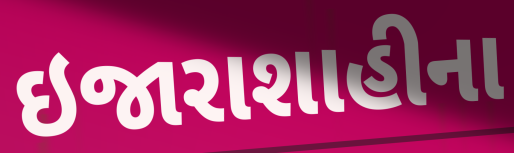
ઇજારાશાહીના